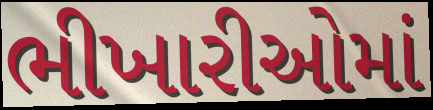
ભીખારીઓમાં